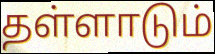
தள்ளாடும்